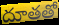
దూతతో